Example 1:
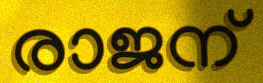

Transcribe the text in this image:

രാജന്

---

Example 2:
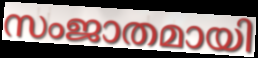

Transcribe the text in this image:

സംജാതമായി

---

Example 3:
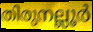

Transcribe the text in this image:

തിരുനല്ലൂർ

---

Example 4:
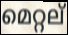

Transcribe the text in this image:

മെറ്റല്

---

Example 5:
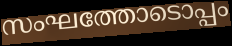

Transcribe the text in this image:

സംഘത്തോടൊപ്പം